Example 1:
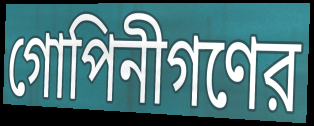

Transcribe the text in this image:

গোপিনীগণের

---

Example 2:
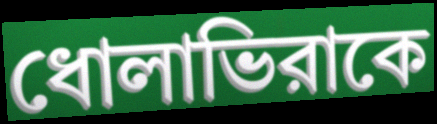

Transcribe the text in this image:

ধোলাভিরাকে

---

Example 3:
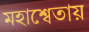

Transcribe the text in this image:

মহাশ্বেতায়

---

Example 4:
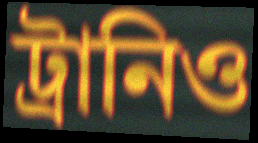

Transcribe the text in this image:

ট্রানিও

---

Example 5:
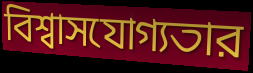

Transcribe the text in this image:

বিশ্বাসযোগ্যতার